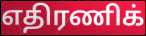
எதிரணிக்